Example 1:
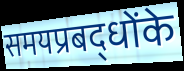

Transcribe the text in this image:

समयप्रबद्धोंके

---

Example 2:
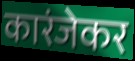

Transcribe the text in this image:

कारंजेकर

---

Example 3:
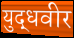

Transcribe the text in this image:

युद्धवीर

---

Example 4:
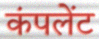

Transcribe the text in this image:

कंपलेंट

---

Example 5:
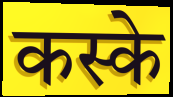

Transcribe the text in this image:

कस्के